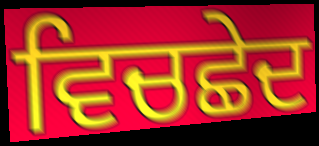
ਵਿਚਛੇਦ